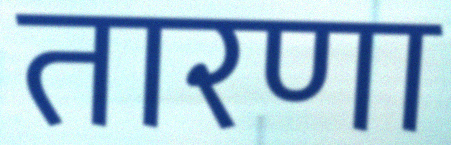
तारणा